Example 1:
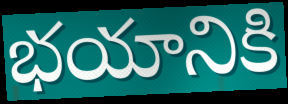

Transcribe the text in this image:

భయానికి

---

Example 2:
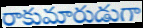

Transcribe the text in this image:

రాకుమారుడుగా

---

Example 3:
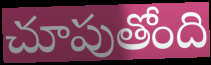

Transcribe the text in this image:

చూపుతోంది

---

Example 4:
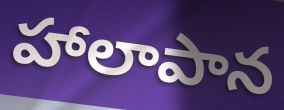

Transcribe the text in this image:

హాలాపాన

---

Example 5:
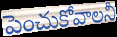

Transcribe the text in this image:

పెంచుకోవాలనీ